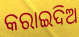
କରାଇଦିଅ